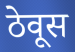
ठेवूस